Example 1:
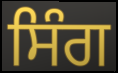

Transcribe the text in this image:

ਸਿੰਗ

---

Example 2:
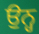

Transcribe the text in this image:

ਉਨ੍ਹ੍ਹ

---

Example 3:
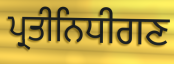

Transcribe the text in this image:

ਪ੍ਰਤੀਨਿਧੀਗਣ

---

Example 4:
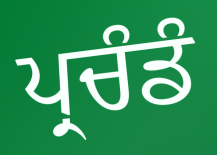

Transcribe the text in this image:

ਪ੍ਰਚੰਡੰ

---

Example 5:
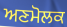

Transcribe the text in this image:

ਅਣਮੋਲਕ